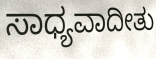
ಸಾಧ್ಯವಾದೀತು